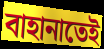
বাহানাতেই